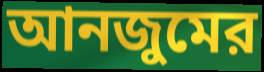
আনজুমের